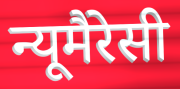
न्यूमैरेसी